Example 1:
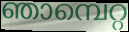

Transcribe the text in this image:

ഞാമ്പെറ്റ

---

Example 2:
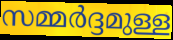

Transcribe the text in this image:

സമ്മർദ്ദമുള്ള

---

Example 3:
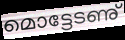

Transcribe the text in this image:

മൊട്ടേടണു്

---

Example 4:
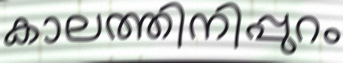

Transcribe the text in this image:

കാലത്തിനിപ്പുറം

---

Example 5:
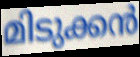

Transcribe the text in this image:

മിടുക്കൻ